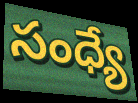
సంధ్యే